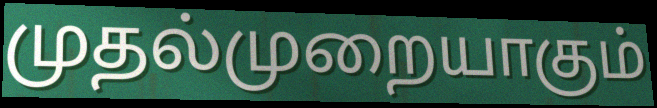
முதல்முறையாகும்